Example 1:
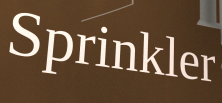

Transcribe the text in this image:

Sprinkler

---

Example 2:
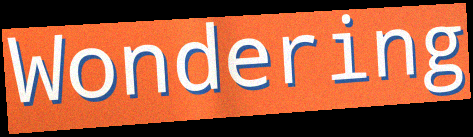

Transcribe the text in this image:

Wondering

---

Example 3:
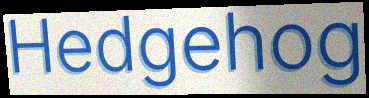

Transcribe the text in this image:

Hedgehog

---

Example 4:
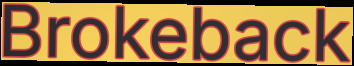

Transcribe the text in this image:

Brokeback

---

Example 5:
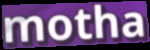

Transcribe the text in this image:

motha